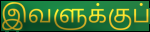
இவளுக்குப்